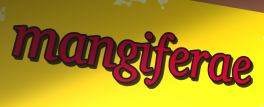
mangiferae